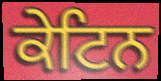
ਕੇਟਿਨ